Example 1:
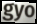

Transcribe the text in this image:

gyo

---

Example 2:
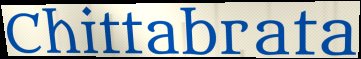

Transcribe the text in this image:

Chittabrata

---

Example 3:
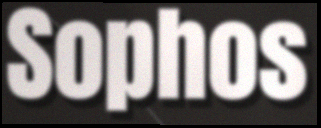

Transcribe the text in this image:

Sophos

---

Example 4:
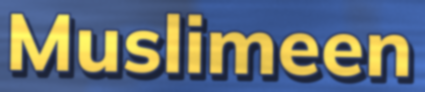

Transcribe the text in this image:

Muslimeen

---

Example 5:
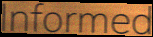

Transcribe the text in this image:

Informed